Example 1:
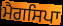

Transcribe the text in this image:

ਮੈਗਸਿਪਾ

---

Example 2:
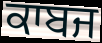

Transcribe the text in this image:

ਕਾਬਜ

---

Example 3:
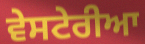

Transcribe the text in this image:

ਵੇਸਟੇਰੀਆ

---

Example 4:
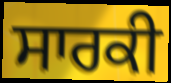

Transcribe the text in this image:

ਸਾਰਕੀ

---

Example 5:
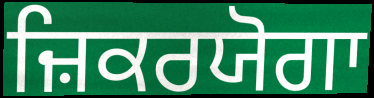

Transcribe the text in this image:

ਜ਼ਿਕਰਯੋਗਾ